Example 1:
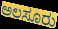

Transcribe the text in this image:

ಅಲಸೂರು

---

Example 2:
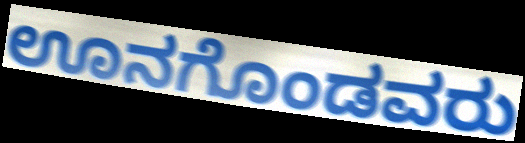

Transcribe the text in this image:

ಊನಗೊಂಡವರು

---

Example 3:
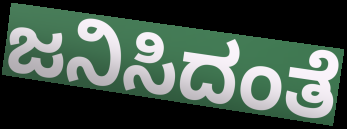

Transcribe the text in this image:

ಜನಿಸಿದಂತೆ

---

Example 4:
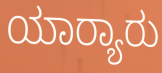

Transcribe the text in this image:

ಯಾರ‍್ಯಾರು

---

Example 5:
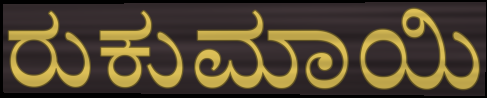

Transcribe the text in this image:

ರುಕುಮಾಯಿ